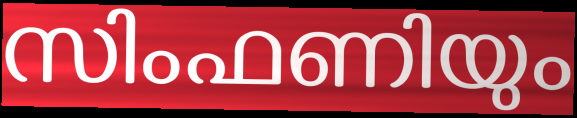
സിംഫണിയും